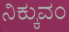
ನಿಕ್ಕುವಂ